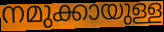
നമുക്കായുള്ള